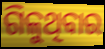
ଗିଳୁଥିବାର